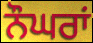
ਨੌਘਰਾਂ